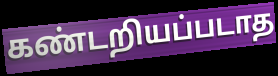
கண்டறியப்படாத